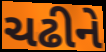
ચઢીને